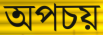
অপচয়